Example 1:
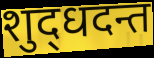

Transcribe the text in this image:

शुद्धदन्त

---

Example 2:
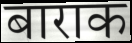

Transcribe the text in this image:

बाराक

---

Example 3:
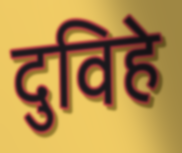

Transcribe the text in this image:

दुविहे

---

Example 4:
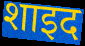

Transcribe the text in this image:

शाइद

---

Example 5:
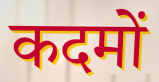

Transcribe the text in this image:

कदमों